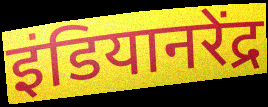
इंडियानरेंद्र